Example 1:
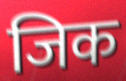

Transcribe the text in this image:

जिक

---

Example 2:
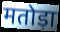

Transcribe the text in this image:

मतोड़ा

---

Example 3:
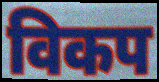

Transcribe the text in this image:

विकप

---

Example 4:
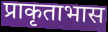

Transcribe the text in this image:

प्राकृताभास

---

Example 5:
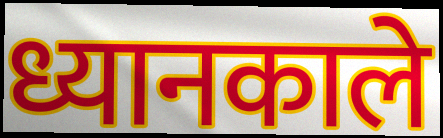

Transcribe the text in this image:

ध्यानकाले